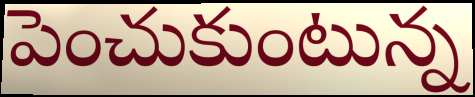
పెంచుకుంటున్న